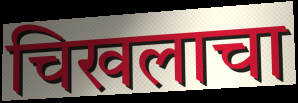
चिखलाचा